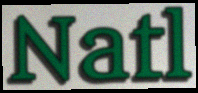
Natl